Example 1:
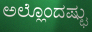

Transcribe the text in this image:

ಅಲ್ಲೊಂದಷ್ಟು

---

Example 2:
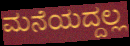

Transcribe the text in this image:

ಮನೆಯದ್ದಲ್ಲ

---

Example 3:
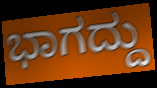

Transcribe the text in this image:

ಭಾಗದ್ದು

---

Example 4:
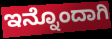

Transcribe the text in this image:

ಇನ್ನೊಂದಾಗಿ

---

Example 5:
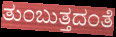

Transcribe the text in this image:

ತುಂಬುತ್ತದಂತೆ